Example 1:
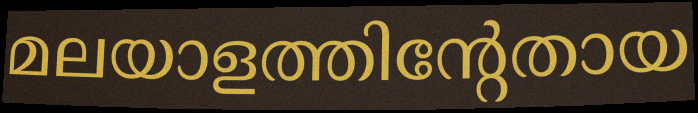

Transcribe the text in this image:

മലയാളത്തിന്റേതായ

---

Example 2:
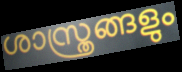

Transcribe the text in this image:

ശാസ്ത്രങ്ങളും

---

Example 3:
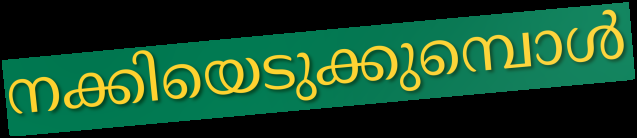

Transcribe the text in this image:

നക്കിയെടുക്കുമ്പൊൾ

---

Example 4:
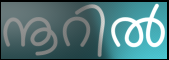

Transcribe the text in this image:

നൂറിൽ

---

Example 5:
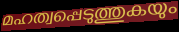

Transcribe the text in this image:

മഹത്വപ്പെടുത്തുകയും